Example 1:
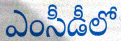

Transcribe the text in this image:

ఎంసీడీలో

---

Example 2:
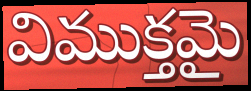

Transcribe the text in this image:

విముక్తమై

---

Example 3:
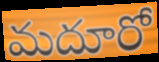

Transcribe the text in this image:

మదూరో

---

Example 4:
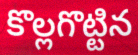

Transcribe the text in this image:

కొల్లగొట్టిన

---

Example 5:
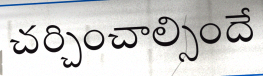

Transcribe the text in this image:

చర్చించాల్సిందే